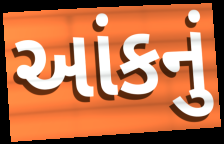
આંકનું